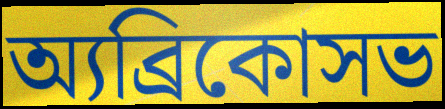
অ্যব্রিকোসভ